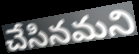
చేసినమని